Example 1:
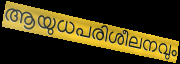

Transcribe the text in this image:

ആയുധപരിശീലനവും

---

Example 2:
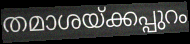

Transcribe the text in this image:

തമാശയ്ക്കപ്പുറം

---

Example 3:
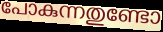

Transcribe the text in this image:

പോകുന്നതുണ്ടോ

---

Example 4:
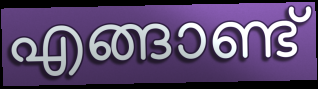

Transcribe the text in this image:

എങ്ങാണ്ട്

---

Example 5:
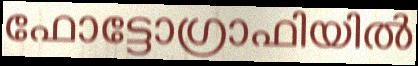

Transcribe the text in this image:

ഫോട്ടോഗ്രാഫിയിൽ